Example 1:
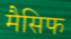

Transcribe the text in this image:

मैसिफ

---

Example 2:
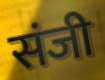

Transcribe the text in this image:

संजी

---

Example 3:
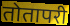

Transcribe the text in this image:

तोतापरी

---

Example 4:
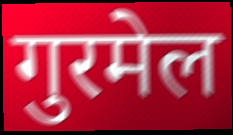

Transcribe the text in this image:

गुरमेल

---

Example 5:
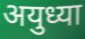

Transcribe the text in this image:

अयुध्या